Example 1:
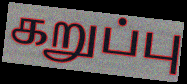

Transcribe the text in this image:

கறுப்பு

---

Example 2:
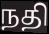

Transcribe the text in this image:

நதி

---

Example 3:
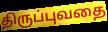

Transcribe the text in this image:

திருப்புவதை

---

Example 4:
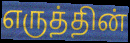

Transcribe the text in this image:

எருத்தின்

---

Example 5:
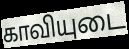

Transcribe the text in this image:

காவியுடை